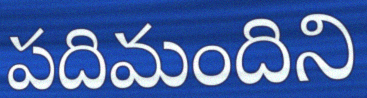
పదిమందిని